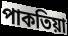
পাকতিয়া